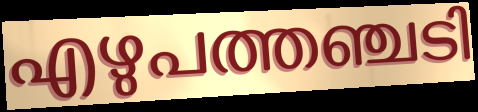
എഴുപത്തഞ്ചടി